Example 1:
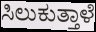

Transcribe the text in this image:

ಸಿಲುಕುತ್ತಾಳೆ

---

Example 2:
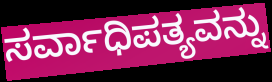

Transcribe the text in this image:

ಸರ್ವಾಧಿಪತ್ಯವನ್ನು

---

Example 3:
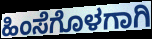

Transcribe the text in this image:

ಹಿಂಸೆಗೊಳಗಾಗಿ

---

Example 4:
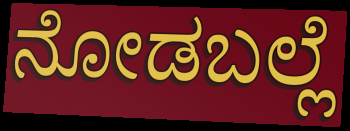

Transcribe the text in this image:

ನೋಡಬಲ್ಲೆ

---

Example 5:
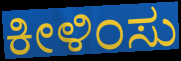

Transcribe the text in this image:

ಕೀಳಿಂಸು